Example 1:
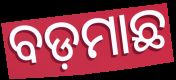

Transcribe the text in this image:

ବଡ଼ମାଛ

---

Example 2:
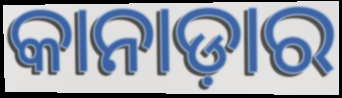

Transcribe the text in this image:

କାନାଡ଼ାର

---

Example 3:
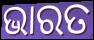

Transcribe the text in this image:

ଭାରତ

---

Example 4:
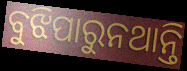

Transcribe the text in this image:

ବୁଝିପାରୁନଥାନ୍ତି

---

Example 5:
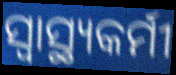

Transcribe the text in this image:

ସ୍ୱାସ୍ଥ୍ୟକର୍ମୀ